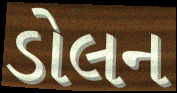
ડોલન